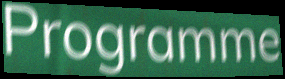
Programme